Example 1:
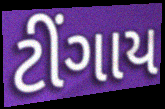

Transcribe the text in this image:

ટીંગાય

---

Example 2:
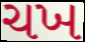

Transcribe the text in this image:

ચખ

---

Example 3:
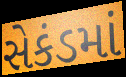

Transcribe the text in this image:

સેકંડમાં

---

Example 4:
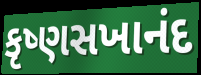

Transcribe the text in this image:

કૃષ્ણસખાનંદ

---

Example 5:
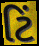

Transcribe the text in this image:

ટિં